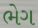
ભેગ